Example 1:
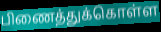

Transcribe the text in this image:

பிணைத்துக்கொள்ள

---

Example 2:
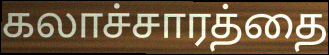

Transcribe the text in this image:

கலாச்சாரத்தை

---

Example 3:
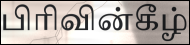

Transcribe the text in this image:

பிரிவின்கீழ்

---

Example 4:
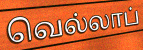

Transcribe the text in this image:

வெல்லாப்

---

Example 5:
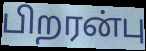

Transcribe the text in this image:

பிறரன்பு